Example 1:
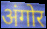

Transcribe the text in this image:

अंगोर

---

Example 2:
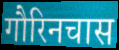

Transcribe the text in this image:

गौरिनचास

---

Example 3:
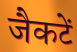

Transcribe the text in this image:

जैकटें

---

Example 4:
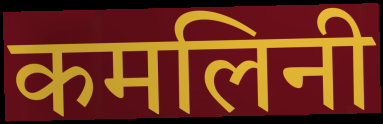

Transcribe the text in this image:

कमलिनी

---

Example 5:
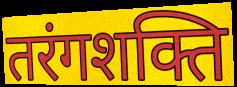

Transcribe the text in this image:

तरंगशक्ति